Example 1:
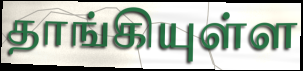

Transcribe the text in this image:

தாங்கியுள்ள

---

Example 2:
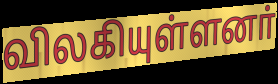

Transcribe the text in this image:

விலகியுள்ளனர்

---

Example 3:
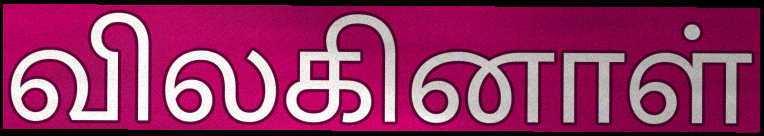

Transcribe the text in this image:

விலகினாள்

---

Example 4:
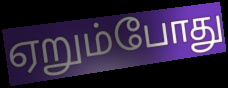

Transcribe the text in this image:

ஏறும்போது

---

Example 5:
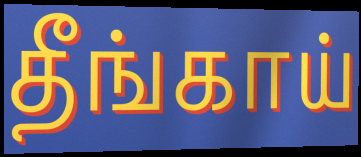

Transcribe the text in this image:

தீங்காய்